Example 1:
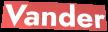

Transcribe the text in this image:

Vander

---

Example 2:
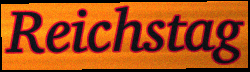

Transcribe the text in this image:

Reichstag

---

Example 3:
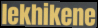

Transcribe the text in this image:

lekhikene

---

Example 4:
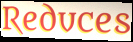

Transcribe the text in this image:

Reduces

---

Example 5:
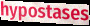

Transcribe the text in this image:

hypostases